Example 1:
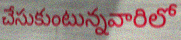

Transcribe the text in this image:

చేసుకుంటున్నవారిలో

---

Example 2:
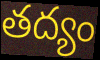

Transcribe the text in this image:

తద్యం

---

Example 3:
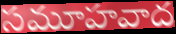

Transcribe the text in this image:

సమూహవాద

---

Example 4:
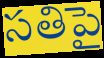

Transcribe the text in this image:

సతిపై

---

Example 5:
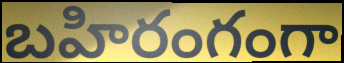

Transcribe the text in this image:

బహిరంగంగా